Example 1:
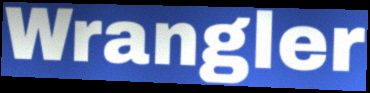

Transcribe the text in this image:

Wrangler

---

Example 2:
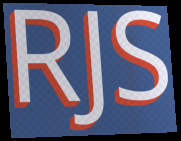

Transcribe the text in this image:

RJS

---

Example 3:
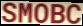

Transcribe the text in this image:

SMOBC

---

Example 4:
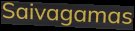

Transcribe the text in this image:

Saivagamas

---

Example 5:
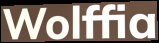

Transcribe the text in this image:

Wolffia